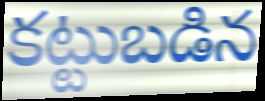
కట్టుబడిన